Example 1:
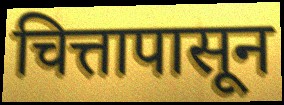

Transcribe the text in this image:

चित्तापासून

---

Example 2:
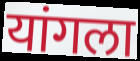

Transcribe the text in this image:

यांगला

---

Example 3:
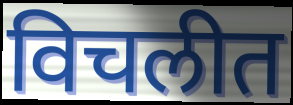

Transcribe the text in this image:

विचलीत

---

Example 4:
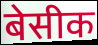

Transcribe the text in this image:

बेसीक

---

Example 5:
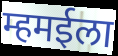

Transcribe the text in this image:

म्हमईला